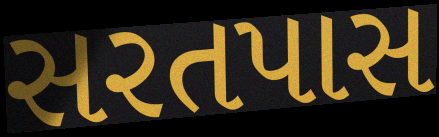
સરતપાસ